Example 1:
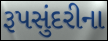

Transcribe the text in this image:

રૂપસુંદરીના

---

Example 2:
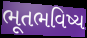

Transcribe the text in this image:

ભૂતભવિષ્ય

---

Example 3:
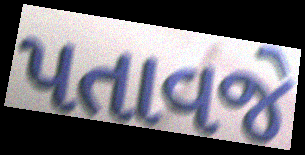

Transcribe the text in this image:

પતાવજે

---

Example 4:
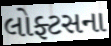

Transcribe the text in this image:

લોફ્ટસના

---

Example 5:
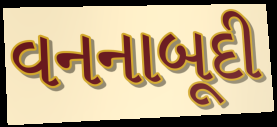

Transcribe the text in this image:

વનનાબૂદી